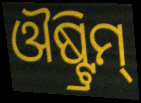
ଔଷ୍ଟ୍ରିମ୍